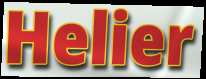
Helier